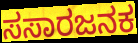
ಸಸಾರಜನಕ